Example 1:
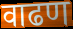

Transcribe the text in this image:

वाढण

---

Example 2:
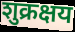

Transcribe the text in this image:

शुक्रक्षय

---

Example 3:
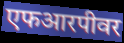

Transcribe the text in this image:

एफआरपीवर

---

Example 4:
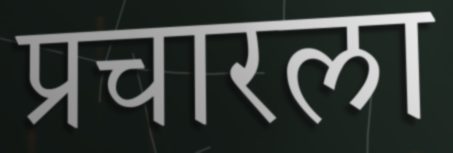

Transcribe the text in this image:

प्रचारला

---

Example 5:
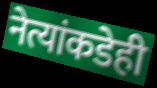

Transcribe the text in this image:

नेत्यांकडेही